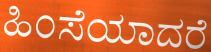
ಹಿಂಸೆಯಾದರೆ